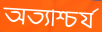
অত্যাশ্চর্য